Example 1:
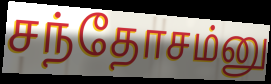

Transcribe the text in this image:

சந்தோசம்னு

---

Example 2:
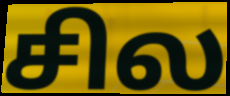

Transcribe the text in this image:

சில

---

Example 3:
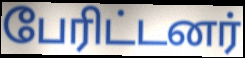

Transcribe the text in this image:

பேரிட்டனர்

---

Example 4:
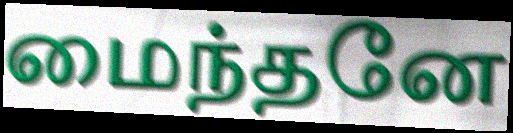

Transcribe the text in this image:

மைந்தனே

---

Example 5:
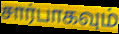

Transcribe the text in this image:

சார்பாகவும்